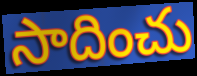
సాదించు